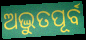
ଅଦ୍ଭୁତପୂର୍ବ